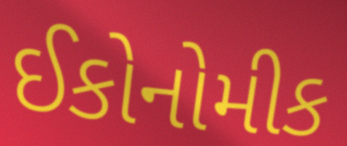
ઈકોનોમીક